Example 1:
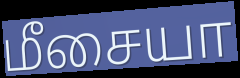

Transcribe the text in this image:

மீசையா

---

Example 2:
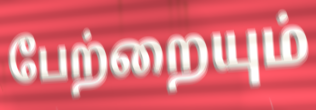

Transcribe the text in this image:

பேற்றையும்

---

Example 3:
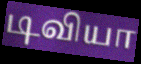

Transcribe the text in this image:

டிவியா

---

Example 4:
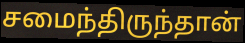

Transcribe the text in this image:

சமைந்திருந்தான்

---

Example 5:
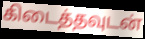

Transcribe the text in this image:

கிடைத்தவுடன்